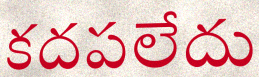
కదపలేదు